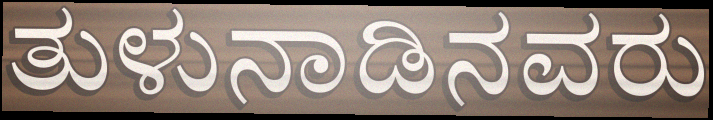
ತುಳುನಾಡಿನವರು